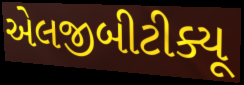
એલજીબીટીક્યૂ